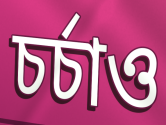
চৰ্চাও